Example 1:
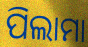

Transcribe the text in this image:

ପିଲାମା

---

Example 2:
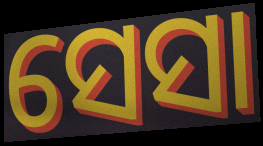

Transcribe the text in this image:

ସେସା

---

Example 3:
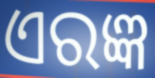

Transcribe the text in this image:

ଏରଜ୍ଞ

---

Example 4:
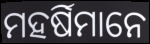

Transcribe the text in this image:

ମହର୍ଷିମାନେ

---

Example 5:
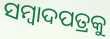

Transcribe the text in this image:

ସମ୍ବାଦପତ୍ରକୁ